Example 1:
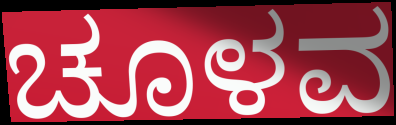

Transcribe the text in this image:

ಚೂಳವ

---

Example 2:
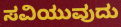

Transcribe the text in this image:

ಸವಿಯುವುದು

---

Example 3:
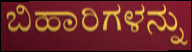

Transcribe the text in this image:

ಬಿಹಾರಿಗಳನ್ನು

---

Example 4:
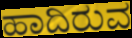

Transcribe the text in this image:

ಹಾದಿರುವ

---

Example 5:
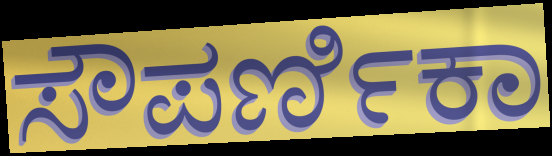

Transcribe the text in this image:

ಸೌಪರ್ಣಿಕಾ